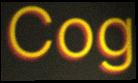
Cog